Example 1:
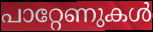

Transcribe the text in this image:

പാറ്റേണുകൾ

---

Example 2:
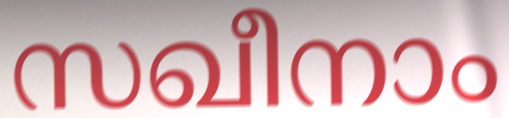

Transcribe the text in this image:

സഖീനാം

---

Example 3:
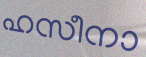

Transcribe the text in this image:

ഹസീനാ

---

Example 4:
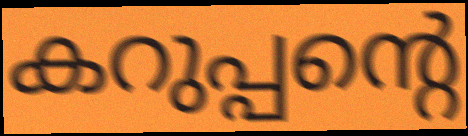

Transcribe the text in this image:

കറുപ്പന്റെ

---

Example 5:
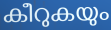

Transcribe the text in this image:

കീറുകയും